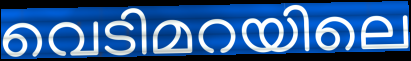
വെടിമറയിലെ